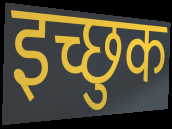
इच्‍छुक